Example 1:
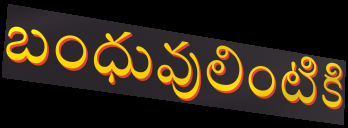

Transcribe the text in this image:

బంధువులింటికి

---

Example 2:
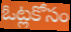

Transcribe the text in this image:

ఓట్లకోసం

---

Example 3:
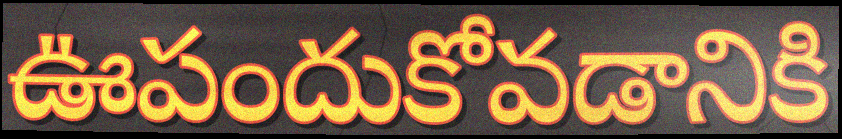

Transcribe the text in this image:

ఊపందుకోవడానికి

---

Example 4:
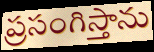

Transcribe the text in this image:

ప్రసంగిస్తాను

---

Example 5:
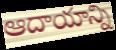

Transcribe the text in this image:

ఆదాయాన్ని